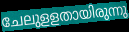
ചേലുളളതായിരുന്നു